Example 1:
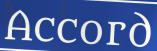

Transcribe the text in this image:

Accord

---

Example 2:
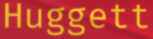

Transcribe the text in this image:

Huggett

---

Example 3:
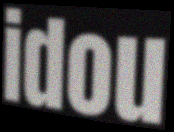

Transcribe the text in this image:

idou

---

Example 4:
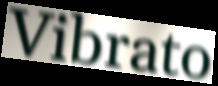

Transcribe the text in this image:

Vibrato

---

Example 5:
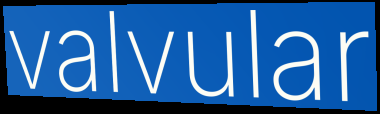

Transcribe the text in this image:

valvular